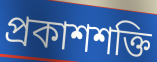
প্রকাশশক্তি